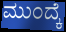
ಮುಂದ್ಕೆ